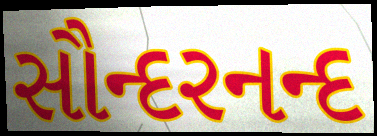
સૌન્દરનન્દ